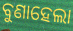
ବୁଣାହେଲା